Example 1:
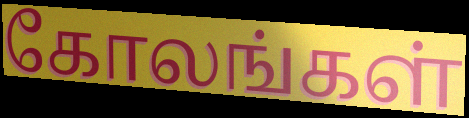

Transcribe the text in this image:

கோலங்கள்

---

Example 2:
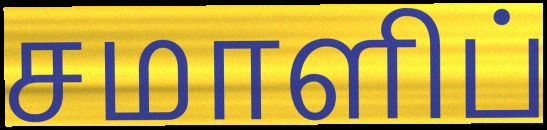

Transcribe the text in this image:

சமாளிப்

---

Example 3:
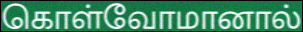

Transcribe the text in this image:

கொள்வோமானால்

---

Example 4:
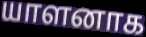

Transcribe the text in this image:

யாளனாக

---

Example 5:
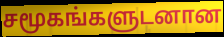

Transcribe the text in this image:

சமூகங்களுடனான